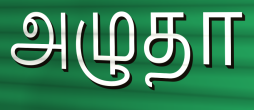
அழுதா